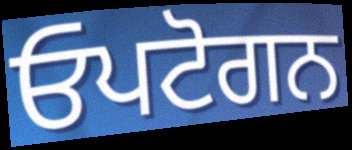
ਓਪਟੋਗਨ